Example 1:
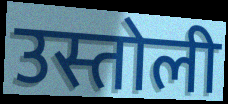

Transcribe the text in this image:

उस्तोली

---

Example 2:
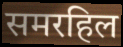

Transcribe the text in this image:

समरहिल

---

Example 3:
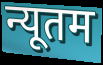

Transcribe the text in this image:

न्यूतम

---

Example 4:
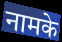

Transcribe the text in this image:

नामके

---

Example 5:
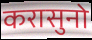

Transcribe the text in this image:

करासुनो